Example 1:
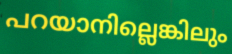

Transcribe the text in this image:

പറയാനില്ലെങ്കിലും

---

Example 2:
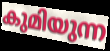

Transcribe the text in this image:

കുമിയുന്ന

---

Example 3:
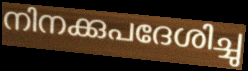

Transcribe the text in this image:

നിനക്കുപദേശിച്ചു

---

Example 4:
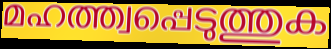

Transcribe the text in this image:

മഹത്ത്വപ്പെടുത്തുക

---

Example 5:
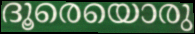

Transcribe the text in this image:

ദൂരെയൊരു